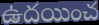
ఉదయించ